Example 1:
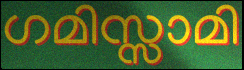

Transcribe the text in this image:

ഗമിസ്സാമി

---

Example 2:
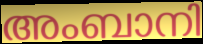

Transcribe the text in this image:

അംബാനി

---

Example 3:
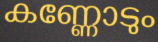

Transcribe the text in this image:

കണ്ണോടും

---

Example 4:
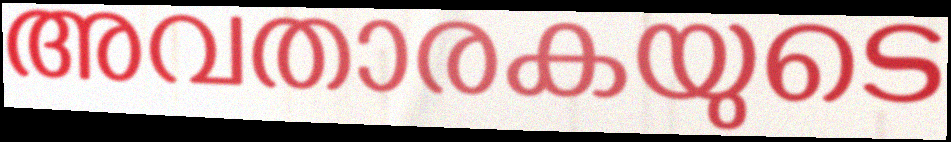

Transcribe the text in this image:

അവതാരകയുടെ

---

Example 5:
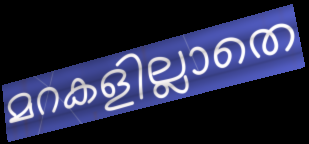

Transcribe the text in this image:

മറകളില്ലാതെ